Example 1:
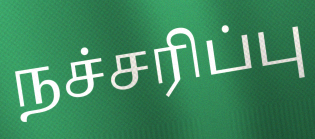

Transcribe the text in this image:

நச்சரிப்பு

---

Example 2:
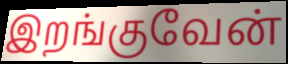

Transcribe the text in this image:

இறங்குவேன்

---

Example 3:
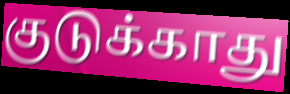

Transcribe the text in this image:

குடுக்காது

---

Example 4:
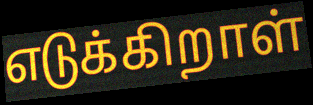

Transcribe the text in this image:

எடுக்கிறாள்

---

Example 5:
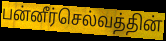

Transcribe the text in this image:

பன்னீர்செல்வத்தின்